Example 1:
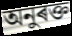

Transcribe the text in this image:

অনুৰক্ত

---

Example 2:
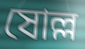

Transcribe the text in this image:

ষোল্ল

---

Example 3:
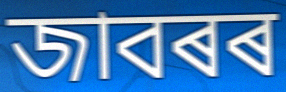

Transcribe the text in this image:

জাবৰৰ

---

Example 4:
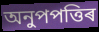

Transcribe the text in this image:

অনুপপত্তিৰ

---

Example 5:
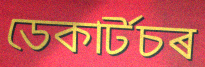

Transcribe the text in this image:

ডেকাৰ্টচৰ